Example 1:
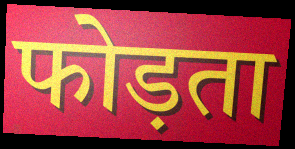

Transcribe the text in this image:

फोड़ता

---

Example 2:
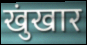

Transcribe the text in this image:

खुंखार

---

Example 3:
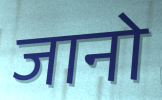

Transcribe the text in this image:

जानो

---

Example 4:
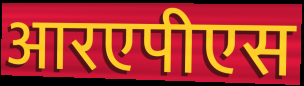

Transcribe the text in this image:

आरएपीएस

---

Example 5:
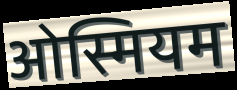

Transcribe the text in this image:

ओस्मियम